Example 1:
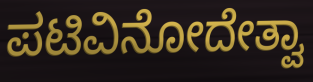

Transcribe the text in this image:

ಪಟಿವಿನೋದೇತ್ವಾ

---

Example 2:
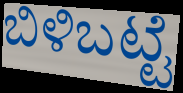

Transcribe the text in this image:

ಬಿಳಿಬಟ್ಟೆ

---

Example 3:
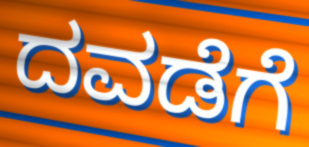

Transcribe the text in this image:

ದವಡೆಗೆ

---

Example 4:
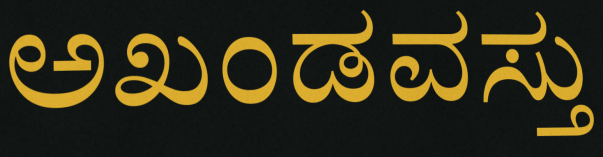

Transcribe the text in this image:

ಅಖಂಡವಸ್ತು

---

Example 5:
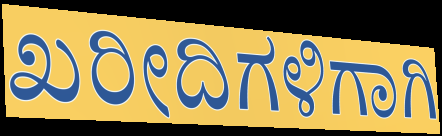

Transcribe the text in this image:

ಖರೀದಿಗಳಿಗಾಗಿ